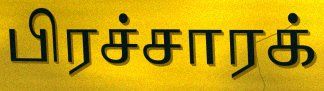
பிரச்சாரக்